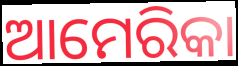
ଆମେରିକା